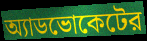
অ্যাডভোকেটের